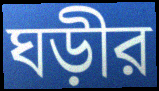
ঘড়ীর